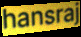
hansraj